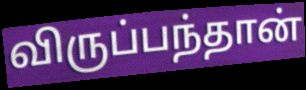
விருப்பந்தான்